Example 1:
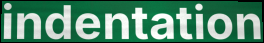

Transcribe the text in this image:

indentation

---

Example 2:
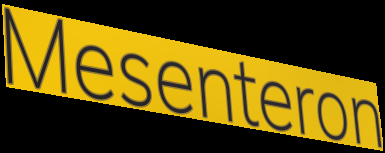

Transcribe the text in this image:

Mesenteron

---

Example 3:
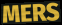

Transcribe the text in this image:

MERS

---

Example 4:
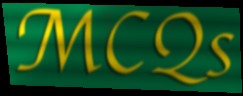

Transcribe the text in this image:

MCQs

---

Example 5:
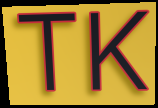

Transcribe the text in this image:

TK